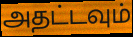
அதட்டவும்